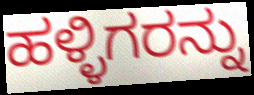
ಹಳ್ಳಿಗರನ್ನು